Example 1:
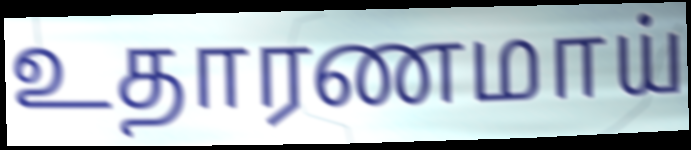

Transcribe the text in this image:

உதாரணமாய்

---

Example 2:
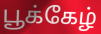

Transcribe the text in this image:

பூக்கேழ்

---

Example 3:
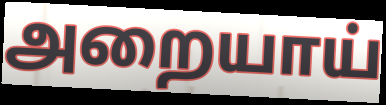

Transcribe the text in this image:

அறையாய்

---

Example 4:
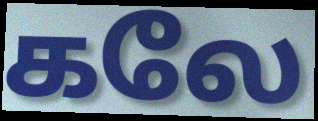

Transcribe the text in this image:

கலே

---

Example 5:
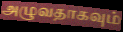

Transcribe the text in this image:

அழுவதாகவும்